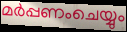
മർപ്പണംചെയ്യും